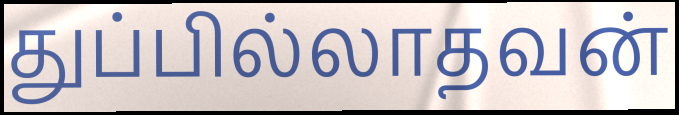
துப்பில்லாதவன்